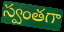
స్వంతగా